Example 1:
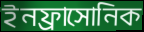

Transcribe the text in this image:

ইনফ্রাসোনিক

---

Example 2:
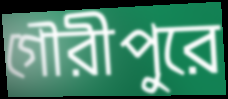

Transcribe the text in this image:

গৌরীপুরে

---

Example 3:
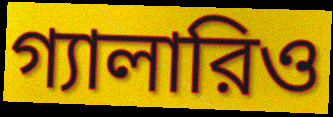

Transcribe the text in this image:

গ্যালারিও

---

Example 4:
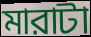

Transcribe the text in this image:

মারাটা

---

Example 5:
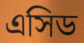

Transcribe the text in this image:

এসিড